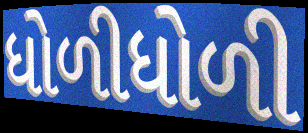
ધોળીધોળી